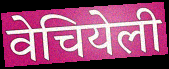
वेचियेली